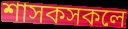
শাসকসকলে